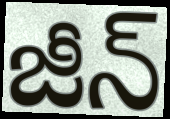
జీన్